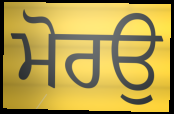
ਮੋਰਉ